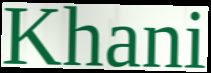
Khani